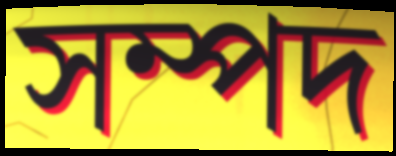
সম্পদ